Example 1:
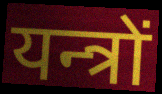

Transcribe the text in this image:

यन्त्रों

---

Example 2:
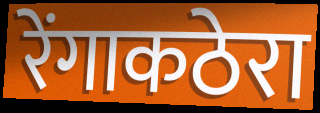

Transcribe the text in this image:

रेंगाकठेरा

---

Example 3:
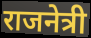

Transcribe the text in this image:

राजनेत्री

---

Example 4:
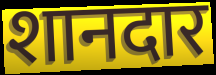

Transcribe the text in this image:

शानदार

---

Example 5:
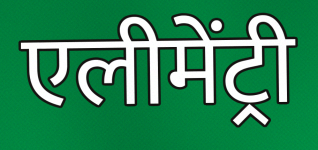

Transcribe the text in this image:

एलीमेंट्री